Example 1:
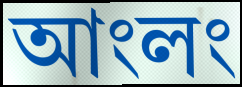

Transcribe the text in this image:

আংলং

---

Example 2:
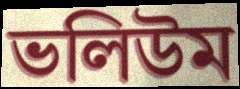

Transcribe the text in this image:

ভলিউম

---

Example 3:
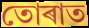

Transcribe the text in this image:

তোৰাত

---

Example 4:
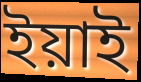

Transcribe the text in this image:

ইয়াই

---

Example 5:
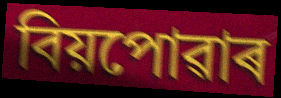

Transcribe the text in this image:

বিয়পোৱাৰ